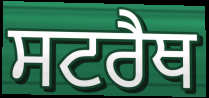
ਸਟਰੈਥ